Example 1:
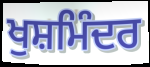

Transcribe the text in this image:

ਖੁਸ਼ਮਿੰਦਰ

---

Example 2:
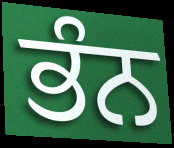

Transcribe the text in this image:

ਭੰਨ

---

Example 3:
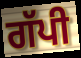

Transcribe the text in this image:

ਗੱਪੀ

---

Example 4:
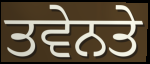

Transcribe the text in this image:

ਤਵੇਨਤੇ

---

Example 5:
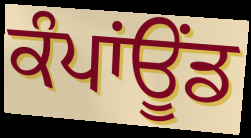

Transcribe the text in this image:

ਕੰਪਾਂਊਂਡ